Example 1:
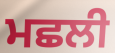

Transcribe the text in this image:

ਮਛਲੀ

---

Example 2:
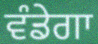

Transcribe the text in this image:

ਵੰਡੇਗਾ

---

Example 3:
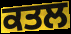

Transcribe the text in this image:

ਕਤਲ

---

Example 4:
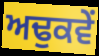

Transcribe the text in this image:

ਅਢੁਕਵੇਂ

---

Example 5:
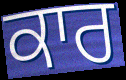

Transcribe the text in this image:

ਕਾਰ